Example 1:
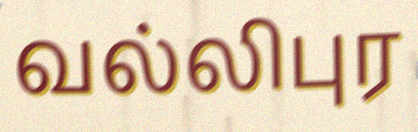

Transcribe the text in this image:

வல்லிபுர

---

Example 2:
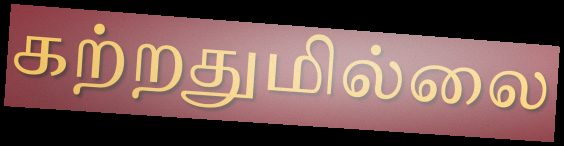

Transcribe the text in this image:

கற்றதுமில்லை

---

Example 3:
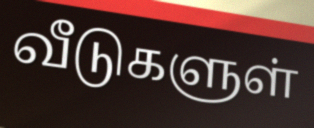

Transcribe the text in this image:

வீடுகளுள்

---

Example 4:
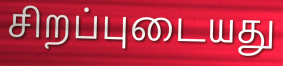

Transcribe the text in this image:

சிறப்புடையது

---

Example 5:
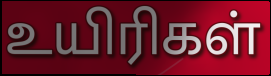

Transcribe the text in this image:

உயிரிகள்